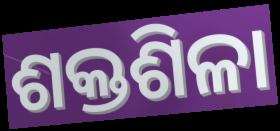
ଶକ୍ତଶିଳା